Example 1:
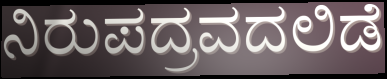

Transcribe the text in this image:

ನಿರುಪದ್ರವದಲಿಡೆ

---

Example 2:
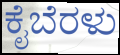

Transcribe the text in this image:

ಕೈಬೆರಳು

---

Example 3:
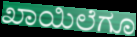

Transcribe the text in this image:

ಖಾಯಿಲೆಗೂ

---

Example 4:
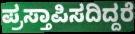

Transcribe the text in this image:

ಪ್ರಸ್ತಾಪಿಸದಿದ್ದರೆ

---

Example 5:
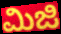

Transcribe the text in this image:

ಮಿಜಿ